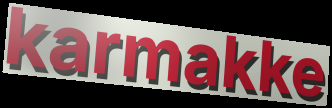
karmakke